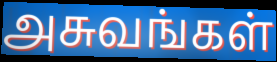
அசுவங்கள்